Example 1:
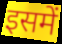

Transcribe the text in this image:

इसमें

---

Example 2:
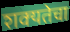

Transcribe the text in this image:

शक्‍यतेचा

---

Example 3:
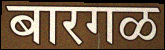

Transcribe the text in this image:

बारगळ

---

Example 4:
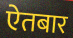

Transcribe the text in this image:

ऐतबार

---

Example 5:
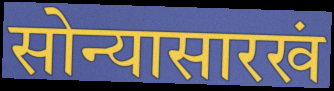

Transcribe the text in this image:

सोन्यासारखं